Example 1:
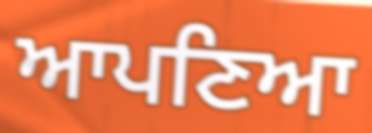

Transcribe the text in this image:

ਆਪਣਿਆ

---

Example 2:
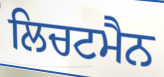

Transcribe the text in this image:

ਲਿਚਟਮੈਨ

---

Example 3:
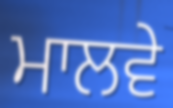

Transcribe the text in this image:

ਮਾਲਵੇ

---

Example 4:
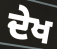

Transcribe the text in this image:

ਦੇਖ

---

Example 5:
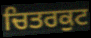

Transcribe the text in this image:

ਚਿਤਰਕੁਟ